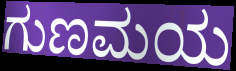
ಗುಣಮಯ